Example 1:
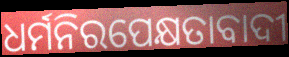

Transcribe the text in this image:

ଧର୍ମନିରପେକ୍ଷତାବାଦୀ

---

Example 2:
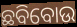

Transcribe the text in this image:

ଛବିବୋଉ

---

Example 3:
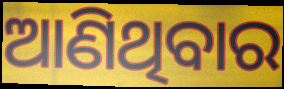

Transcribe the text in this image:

ଆଣିଥିବାର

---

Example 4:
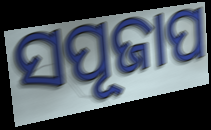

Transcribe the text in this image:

ସପୂଜାପ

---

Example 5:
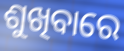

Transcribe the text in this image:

ଶୁଖିବାରେ